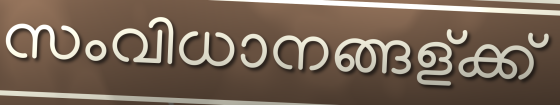
സംവിധാനങ്ങള്ക്ക്